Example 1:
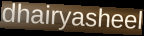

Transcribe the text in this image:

dhairyasheel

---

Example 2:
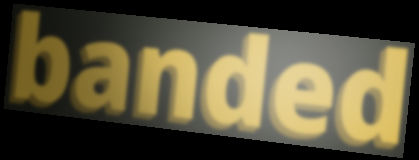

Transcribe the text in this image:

banded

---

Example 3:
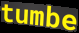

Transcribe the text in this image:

tumbe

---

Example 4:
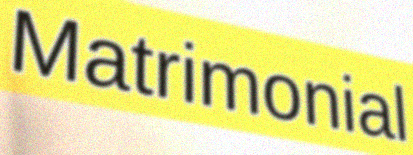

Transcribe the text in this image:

Matrimonial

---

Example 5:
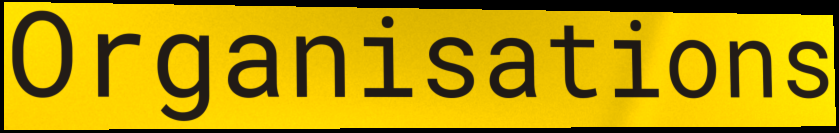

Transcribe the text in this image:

Organisations